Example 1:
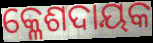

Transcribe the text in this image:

କ୍ଳେଶଦାୟକ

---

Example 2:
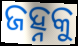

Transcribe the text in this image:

ଜହ୍ନକୁ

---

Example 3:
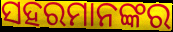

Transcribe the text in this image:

ସହରମାନଙ୍କର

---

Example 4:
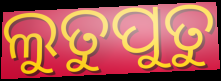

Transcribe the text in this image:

ଲୁତୁପୁତୁ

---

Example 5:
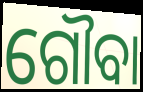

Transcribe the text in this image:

ଗୌବା